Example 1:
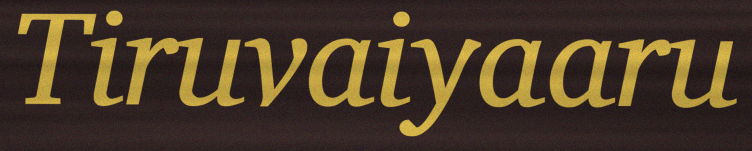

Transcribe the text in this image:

Tiruvaiyaaru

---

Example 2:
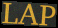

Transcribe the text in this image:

LAP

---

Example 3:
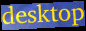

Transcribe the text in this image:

desktop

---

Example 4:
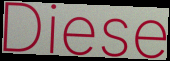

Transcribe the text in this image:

Diese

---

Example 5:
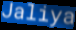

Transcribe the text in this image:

Jaliya